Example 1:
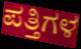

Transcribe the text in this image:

ಪತ್ತಿಗಳ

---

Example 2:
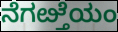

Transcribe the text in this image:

ನೆಗೞ್ತೆಯಂ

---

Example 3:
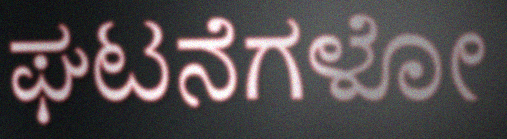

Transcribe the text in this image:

ಘಟನೆಗಳೋ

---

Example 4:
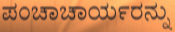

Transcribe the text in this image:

ಪಂಚಾಚಾರ್ಯರನ್ನು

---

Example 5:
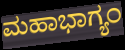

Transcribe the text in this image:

ಮಹಾಭಾಗ್ಯಂ